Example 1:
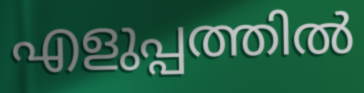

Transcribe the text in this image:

എളുപ്പത്തിൽ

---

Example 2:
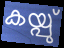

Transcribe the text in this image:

കയ്പു്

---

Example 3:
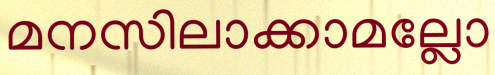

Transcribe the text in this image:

മനസിലാക്കാമല്ലോ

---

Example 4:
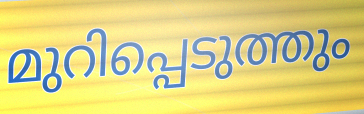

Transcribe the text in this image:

മുറിപ്പെടുത്തും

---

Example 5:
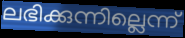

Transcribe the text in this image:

ലഭിക്കുന്നില്ലെന്ന്